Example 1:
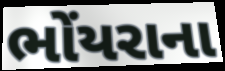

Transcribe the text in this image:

ભોંયરાના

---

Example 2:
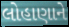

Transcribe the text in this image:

લોહાણાને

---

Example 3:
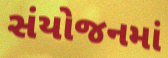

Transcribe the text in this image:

સંયોજનમાં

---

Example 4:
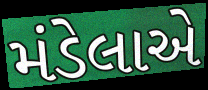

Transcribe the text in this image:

મંડેલાએ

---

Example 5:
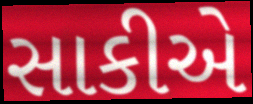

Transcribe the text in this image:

સાકીએ